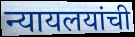
न्यायलयांची